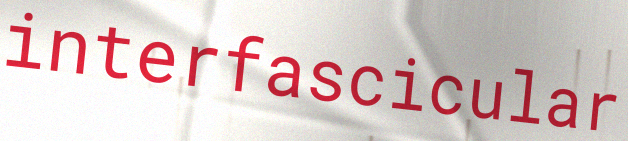
interfascicular